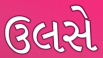
ઉલસે